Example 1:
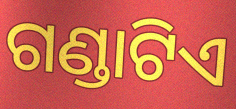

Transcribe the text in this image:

ଗଣ୍ଡାଟିଏ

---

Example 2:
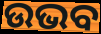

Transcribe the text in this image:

ଉଭବ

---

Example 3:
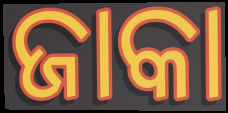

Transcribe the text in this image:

ଜାକା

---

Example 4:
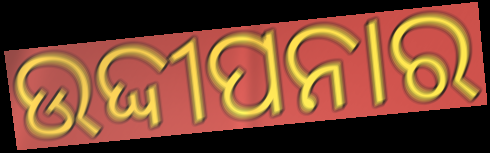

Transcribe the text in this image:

ଉଦ୍ଦୀପନାର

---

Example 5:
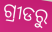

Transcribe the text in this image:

ଗ୍ରୀଡରୁ